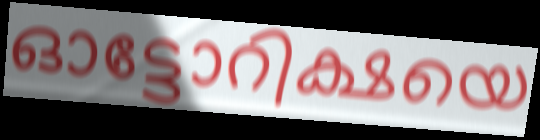
ഓട്ടോറിക്ഷയെ